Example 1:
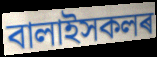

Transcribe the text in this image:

বালাইসকলৰ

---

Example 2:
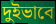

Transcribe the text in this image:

দুইভাবে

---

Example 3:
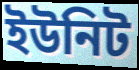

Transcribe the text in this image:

ইউনিট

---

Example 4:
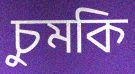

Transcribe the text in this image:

চুমকি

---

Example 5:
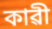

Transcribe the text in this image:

কাৱী